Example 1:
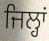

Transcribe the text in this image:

ਜਿਲ੍ਹਾਂ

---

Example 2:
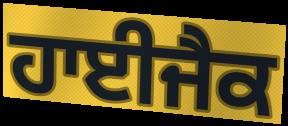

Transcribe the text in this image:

ਹਾਈਜੈਕ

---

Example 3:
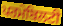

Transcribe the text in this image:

ਪਰਮੇਬਿਲਟੀ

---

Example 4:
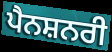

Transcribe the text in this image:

ਪੈਨਸ਼ਨਰੀ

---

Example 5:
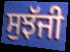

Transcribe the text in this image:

ਸੁਝੱਜੀ